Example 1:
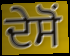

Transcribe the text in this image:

ਦੇਸੋਂ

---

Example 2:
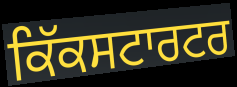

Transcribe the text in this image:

ਕਿੱਕਸਟਾਰਟਰ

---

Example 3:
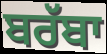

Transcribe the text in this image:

ਬਰੱਬਾ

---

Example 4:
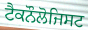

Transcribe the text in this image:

ਟੈਕਨੌਲੋਜਿਸਟ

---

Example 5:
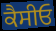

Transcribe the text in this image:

ਕੈਸੀਓ